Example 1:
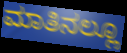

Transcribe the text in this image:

ಮಾತಿನಲ್ಲೂ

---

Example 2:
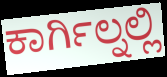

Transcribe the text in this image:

ಕಾರ್ಗಿಲ್ನಲ್ಲಿ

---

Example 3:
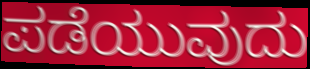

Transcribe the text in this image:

ಪಡೆಯುವುದು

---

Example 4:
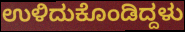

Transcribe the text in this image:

ಉಳಿದುಕೊಂಡಿದ್ದಳು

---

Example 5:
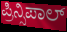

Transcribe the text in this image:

ಪ್ರಿನ್ಸಿಪಾಲ್